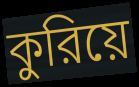
কুরিয়ে